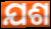
ଯଶ